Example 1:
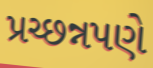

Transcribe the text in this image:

પ્રચ્છન્નપણે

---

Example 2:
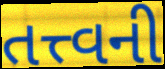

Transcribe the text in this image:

તત્ત્વની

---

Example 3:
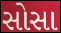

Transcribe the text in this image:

સોસા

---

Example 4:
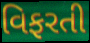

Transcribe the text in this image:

વિફરતી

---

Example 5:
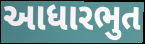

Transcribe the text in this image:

આધારભુત